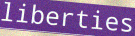
liberties